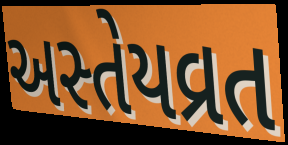
અસ્તેયવ્રત